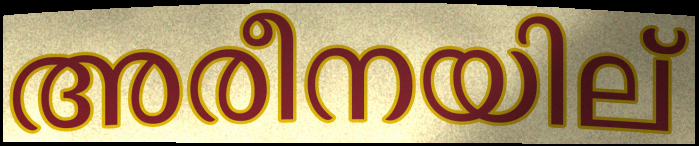
അരീനയില്